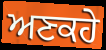
ਅਣਕਹੇ